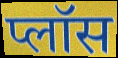
प्लॉस